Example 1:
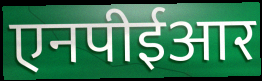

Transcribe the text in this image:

एनपीईआर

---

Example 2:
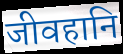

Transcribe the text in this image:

जीवहानि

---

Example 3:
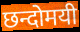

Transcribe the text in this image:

छन्दोमयी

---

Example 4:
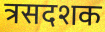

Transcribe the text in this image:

त्रसदशक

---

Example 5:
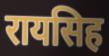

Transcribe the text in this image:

रायसिह